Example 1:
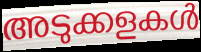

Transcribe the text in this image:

അടുക്കളകൾ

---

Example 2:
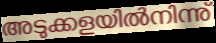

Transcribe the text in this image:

അടുക്കളയിൽനിന്നു്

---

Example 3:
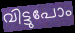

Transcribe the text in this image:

വിട്ടുപോം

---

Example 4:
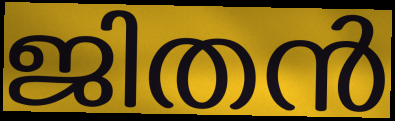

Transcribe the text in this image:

ജിതൻ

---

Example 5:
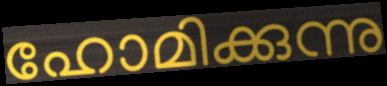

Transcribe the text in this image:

ഹോമിക്കുന്നു